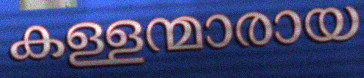
കള്ളന്മാരായ